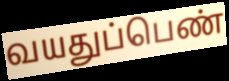
வயதுப்பெண்